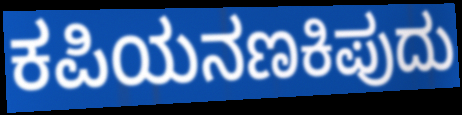
ಕಪಿಯನಣಕಿಪುದು